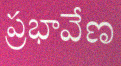
ప్రభావేణ